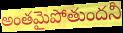
అంతమైపోతుందనీ